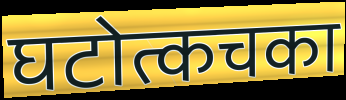
घटोत्कचका